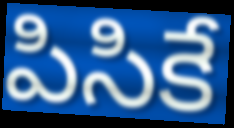
పిసికే